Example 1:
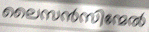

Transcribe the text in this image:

ലൈസൻസിന്മേൽ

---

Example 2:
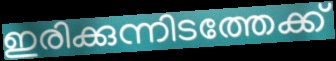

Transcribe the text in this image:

ഇരിക്കുന്നിടത്തേക്ക്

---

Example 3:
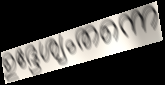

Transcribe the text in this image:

ഉദ്ദേശ്യംതന്നെ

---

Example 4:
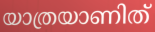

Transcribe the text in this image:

യാത്രയാണിത്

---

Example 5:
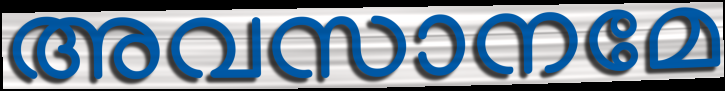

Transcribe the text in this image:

അവസാനമേ